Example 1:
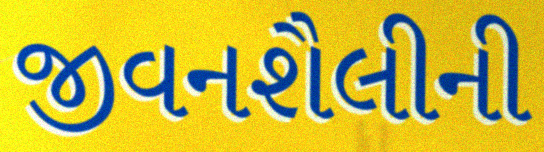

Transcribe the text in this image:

જીવનશૈલીની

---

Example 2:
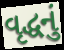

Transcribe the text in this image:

વૃદ્ધનું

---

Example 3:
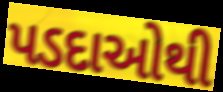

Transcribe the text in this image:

પડદાઓથી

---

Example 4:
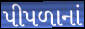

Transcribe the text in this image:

પીપળાનાં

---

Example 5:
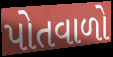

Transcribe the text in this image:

પોતવાળો